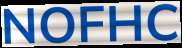
NOFHC